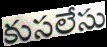
కుసలేసు